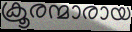
ക്രൂരന്മാരായ